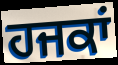
ਹਜਕਾਂ